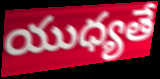
యుధ్యతే